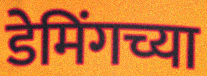
डेमिंगच्या